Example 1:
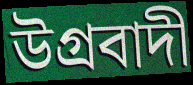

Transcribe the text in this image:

উগ্ৰবাদী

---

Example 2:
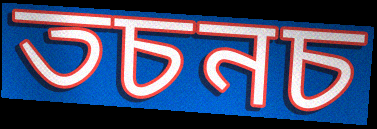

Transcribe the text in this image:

তচনচ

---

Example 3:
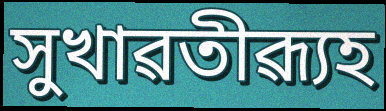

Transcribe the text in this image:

সুখাৱতীৱ্যূহ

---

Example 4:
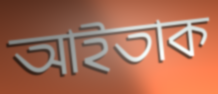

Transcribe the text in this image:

আইতাক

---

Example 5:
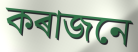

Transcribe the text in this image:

কৰাজনে